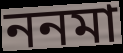
ননমা